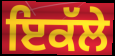
ਇਕੱਲੇ